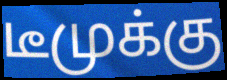
டீமுக்கு